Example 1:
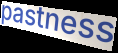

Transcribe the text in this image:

pastness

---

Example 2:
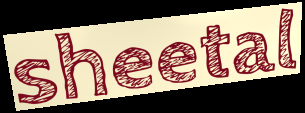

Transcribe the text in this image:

sheetal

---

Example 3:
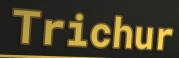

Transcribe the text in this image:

Trichur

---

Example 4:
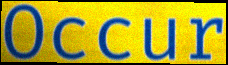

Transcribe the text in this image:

Occur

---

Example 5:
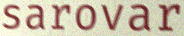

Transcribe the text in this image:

sarovar